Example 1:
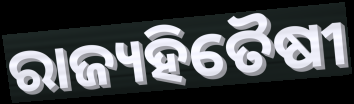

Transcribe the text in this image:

ରାଜ୍ୟହିତୈଷୀ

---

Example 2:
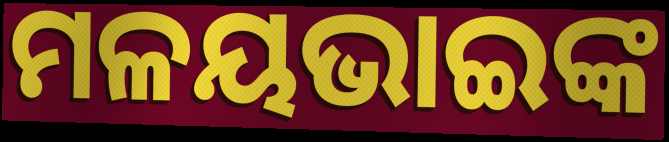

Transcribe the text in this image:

ମଳୟଭାଇଙ୍କ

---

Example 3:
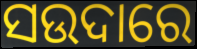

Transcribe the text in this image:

ସଉଦାରେ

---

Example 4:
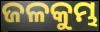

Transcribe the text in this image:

ଜଳକୁମ୍ଭ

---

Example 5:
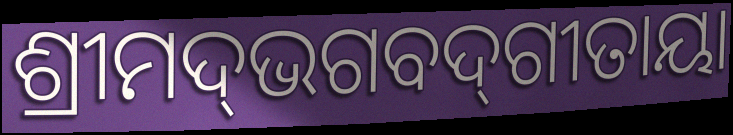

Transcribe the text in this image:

ଶ୍ରୀମଦ୍‌ଭଗବଦ୍‌ଗୀତାୟା